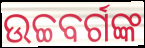
ଉଚ୍ଚବର୍ଗଙ୍କ